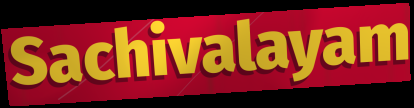
Sachivalayam